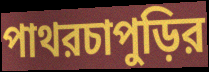
পাথরচাপুড়ির